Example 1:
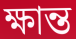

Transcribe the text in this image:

ক্ষান্ত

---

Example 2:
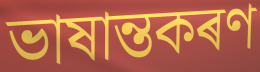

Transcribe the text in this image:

ভাষান্তকৰণ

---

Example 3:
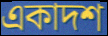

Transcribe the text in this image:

একাদশ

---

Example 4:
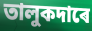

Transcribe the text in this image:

তালুকদাৰে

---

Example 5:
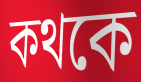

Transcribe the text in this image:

কথকে